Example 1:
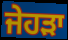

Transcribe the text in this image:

ਜੇਹੜਾ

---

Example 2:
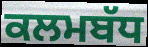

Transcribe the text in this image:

ਕਲਮਬੱਧ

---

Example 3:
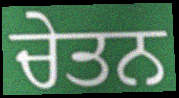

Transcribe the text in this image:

ਚੇਤਨ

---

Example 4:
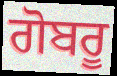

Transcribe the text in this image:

ਗੋਬਰੂ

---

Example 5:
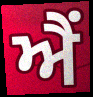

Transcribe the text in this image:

ਐੰ